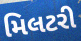
મિલટરી